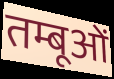
तम्बूओं